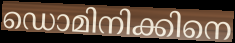
ഡൊമിനിക്കിനെ